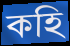
কহি